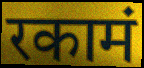
रकामं